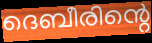
ദെബീരിന്റെ